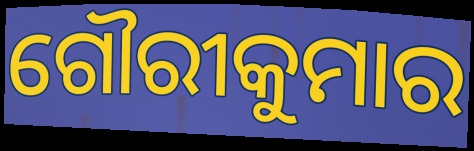
ଗୌରୀକୁମାର